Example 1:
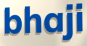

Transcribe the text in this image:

bhaji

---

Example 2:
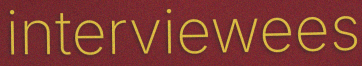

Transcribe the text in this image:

interviewees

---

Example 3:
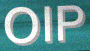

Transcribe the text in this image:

OIP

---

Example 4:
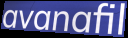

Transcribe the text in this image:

avanafil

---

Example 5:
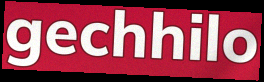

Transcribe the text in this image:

gechhilo